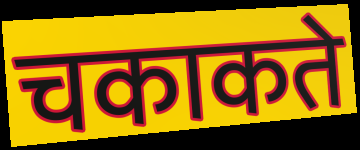
चकाकते